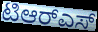
ಟಿಆರ್‌ಎಸ್